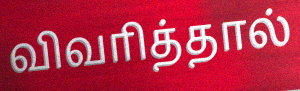
விவரித்தால்